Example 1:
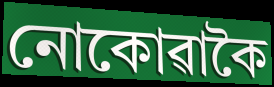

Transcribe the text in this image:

নোকোৱাকৈ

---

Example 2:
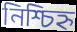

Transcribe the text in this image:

নিশ্চিহ্ন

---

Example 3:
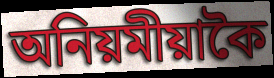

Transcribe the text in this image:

অনিয়মীয়াকৈ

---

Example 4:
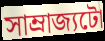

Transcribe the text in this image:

সাম্ৰাজ্যটো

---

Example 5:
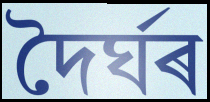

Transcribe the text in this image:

দৈৰ্ঘৰ